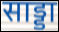
साड्डा